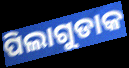
ପିଲାଗୁଡାକ